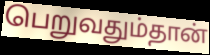
பெறுவதும்தான்